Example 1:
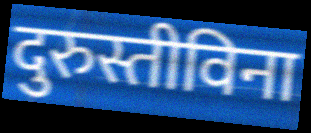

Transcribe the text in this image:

दुरुस्तीविना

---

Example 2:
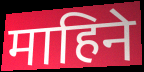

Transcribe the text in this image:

माहिने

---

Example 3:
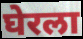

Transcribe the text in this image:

घेरला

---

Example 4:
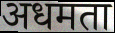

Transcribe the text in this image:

अधमता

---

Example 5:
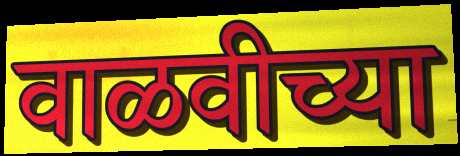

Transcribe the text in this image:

वाळवीच्या